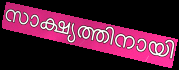
സാക്ഷ്യത്തിനായി